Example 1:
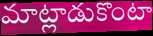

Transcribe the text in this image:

మాట్లాడుకొంటా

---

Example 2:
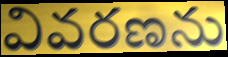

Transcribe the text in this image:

వివరణను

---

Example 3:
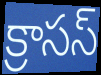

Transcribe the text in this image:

క్రాసస్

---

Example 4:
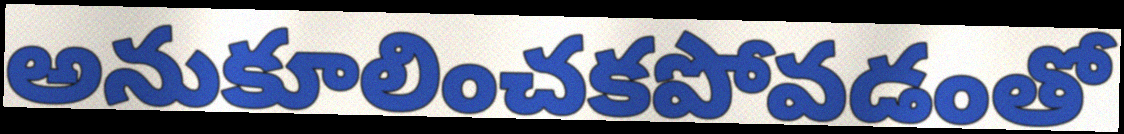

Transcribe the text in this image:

అనుకూలించకపోవడంతో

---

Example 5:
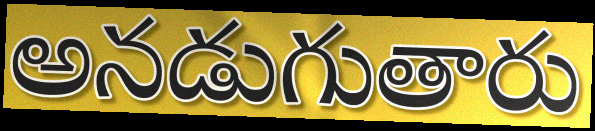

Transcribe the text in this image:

అనడుగుతారు